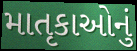
માતૃકાઓનું